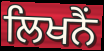
ਲਿਖਨੈਂ